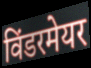
विंडरमेयर